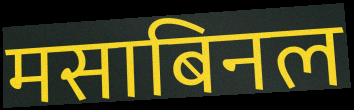
मसाबिनल